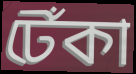
টেঁকা